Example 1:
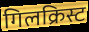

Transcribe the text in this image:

गिलक्रिस्ट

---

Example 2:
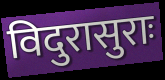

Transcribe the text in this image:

विदुरासुराः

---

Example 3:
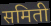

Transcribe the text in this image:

समिती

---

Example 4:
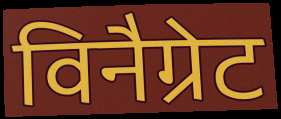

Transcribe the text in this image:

विनैग्रेट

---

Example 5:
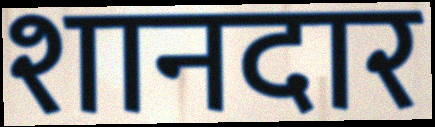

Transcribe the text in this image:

शानदार